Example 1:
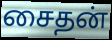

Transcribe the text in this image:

சைதன்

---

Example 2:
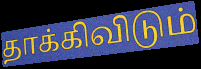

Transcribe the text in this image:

தாக்கிவிடும்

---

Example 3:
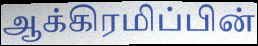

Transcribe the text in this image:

ஆக்கிரமிப்பின்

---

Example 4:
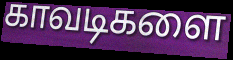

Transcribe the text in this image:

காவடிகளை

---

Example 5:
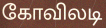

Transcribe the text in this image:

கோவிலடி